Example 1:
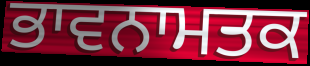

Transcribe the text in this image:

ਭਾਵਨਾਮਤਕ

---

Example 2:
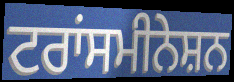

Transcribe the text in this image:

ਟਰਾਂਸਮੀਨੇਸ਼ਨ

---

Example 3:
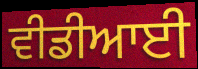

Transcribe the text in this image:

ਵੀਡੀਆਈ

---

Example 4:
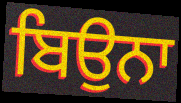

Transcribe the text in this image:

ਬਿਉਨਾ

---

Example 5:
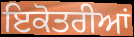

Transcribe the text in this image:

ਇਕੋਤਰੀਆਂ